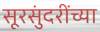
सूरसुंदरींच्या